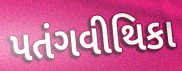
પતંગવીથિકા